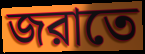
জরাতে